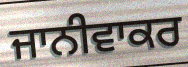
ਜਾਨੀਵਾਕਰ